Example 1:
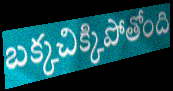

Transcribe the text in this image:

బక్కచిక్కిపోతోంది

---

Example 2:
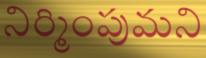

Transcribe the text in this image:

నిర్మింపుమని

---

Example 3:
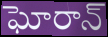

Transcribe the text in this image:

ఘోరాన్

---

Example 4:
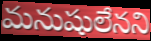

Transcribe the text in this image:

మనుషులేనని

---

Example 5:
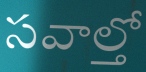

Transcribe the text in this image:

సవాల్తో